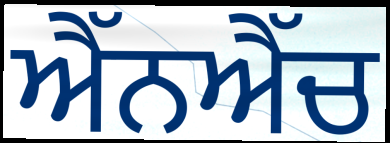
ਐੱਨਐੱਚ